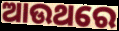
ଆଉଥରେ